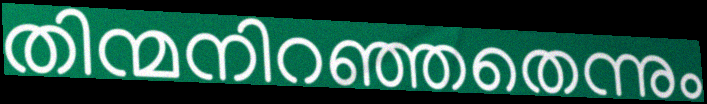
തിന്മനിറഞ്ഞതെന്നും